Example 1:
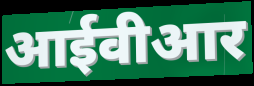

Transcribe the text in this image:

आईवीआर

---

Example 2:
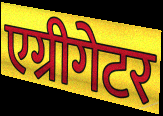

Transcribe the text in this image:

एग्रीगेटर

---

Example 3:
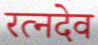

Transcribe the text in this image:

रत्नदेव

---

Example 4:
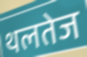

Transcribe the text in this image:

थलतेज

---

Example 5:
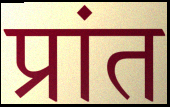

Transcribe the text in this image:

प्रांत